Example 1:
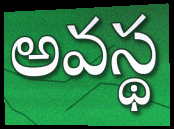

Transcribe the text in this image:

అవస్థ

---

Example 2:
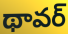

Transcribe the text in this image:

థావర్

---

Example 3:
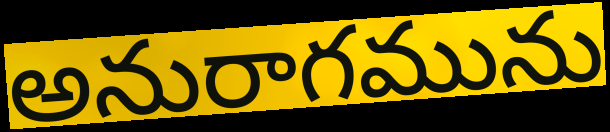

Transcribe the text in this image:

అనురాగమును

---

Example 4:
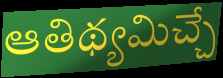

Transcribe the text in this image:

ఆతిథ్యమిచ్చే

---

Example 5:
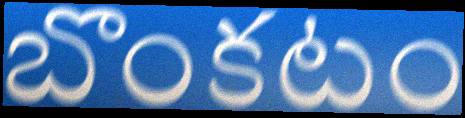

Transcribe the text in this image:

బొంకటం